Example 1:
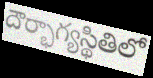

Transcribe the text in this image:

దౌర్భాగ్యస్థితిలో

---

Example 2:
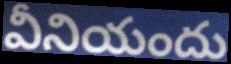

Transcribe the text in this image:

వీనియందు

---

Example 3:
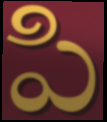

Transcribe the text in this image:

పి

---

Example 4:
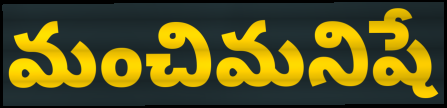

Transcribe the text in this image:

మంచిమనిషే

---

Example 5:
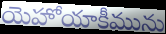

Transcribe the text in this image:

యెహోయాకీమును